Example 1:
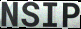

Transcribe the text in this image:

NSIP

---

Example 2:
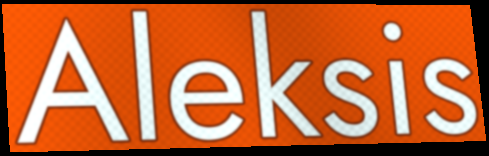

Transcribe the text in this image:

Aleksis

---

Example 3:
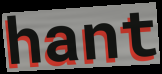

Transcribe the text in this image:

hant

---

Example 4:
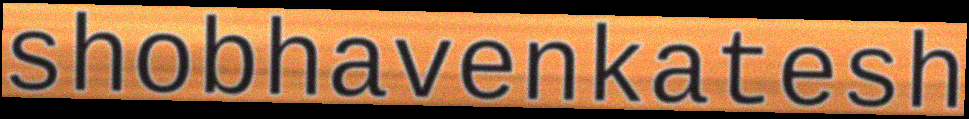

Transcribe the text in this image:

shobhavenkatesh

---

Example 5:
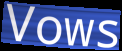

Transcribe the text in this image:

Vows